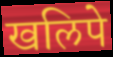
खलिपे